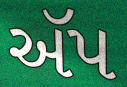
ઍપ